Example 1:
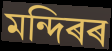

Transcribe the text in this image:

মন্দিৰৰ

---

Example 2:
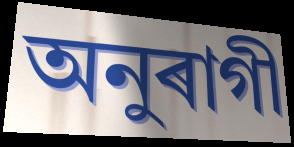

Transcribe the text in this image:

অনুৰাগী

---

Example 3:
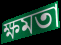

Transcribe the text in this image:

ক্ষমতা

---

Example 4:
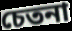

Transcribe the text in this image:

চেতনা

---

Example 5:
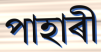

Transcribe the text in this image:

পাহাৰী